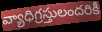
వ్యాధిగ్రస్తులందరికీ